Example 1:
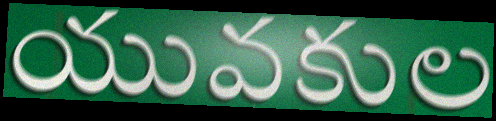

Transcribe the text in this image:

యువకుల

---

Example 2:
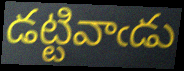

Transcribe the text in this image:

డట్టివాఁడు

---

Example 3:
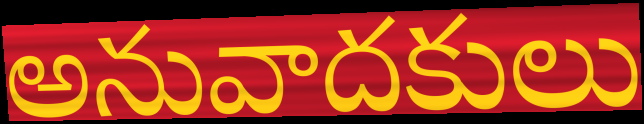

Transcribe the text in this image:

అనువాదకులు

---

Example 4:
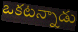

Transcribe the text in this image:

ఒకటన్నాడు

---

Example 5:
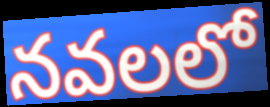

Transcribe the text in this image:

నవలలో